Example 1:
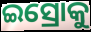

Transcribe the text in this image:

ଇସ୍ରୋକୁ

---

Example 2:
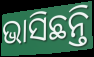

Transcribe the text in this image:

ଭାସିଛନ୍ତି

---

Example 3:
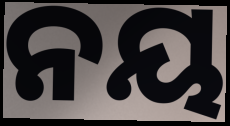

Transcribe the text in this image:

ନୟ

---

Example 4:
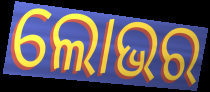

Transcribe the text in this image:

ଲୋଭର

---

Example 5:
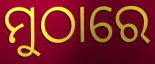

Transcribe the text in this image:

ମୁଠାରେ